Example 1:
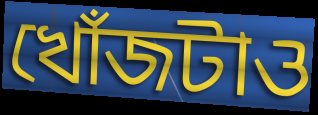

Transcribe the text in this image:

খোঁজটাও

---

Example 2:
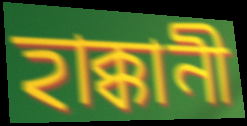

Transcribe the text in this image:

হাক্কানী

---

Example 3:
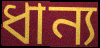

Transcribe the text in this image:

ধান্য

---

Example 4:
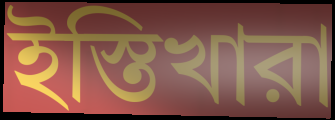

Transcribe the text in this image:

ইস্তিখারা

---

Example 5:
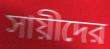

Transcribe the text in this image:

সায়ীদের